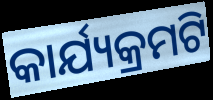
କାର୍ଯ୍ୟକ୍ରମଟି